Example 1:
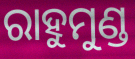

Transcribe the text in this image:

ରାହୁମୁଣ୍ଡ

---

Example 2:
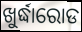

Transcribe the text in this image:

ଖୁର୍ଦ୍ଧାରୋଡ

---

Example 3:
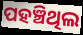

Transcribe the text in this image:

ପହଞ୍ଚିଥିଲ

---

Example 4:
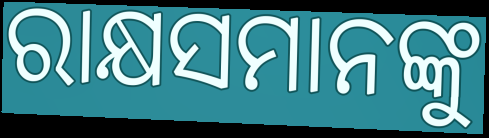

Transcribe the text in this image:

ରାକ୍ଷସମାନଙ୍କୁ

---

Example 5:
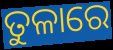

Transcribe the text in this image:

ତୁଳାରେ